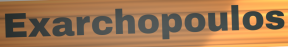
Exarchopoulos